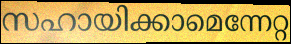
സഹായിക്കാമെന്നേറ്റ